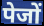
पेजों